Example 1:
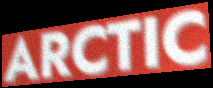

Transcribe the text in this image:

ARCTIC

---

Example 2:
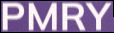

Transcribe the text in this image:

PMRY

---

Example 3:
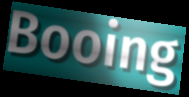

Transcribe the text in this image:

Booing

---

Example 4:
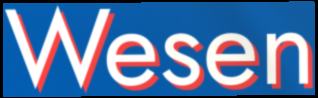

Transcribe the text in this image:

Wesen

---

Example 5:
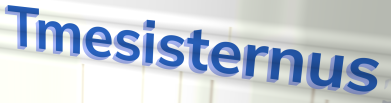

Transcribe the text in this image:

Tmesisternus